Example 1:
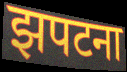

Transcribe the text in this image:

झपटना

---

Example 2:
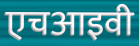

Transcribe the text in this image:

एचआइवी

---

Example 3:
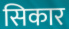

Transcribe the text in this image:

सिकार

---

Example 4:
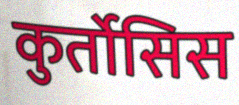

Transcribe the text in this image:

कुर्तोसिस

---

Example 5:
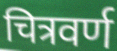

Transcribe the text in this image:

चित्रवर्ण